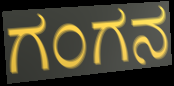
ಗಂಗನ